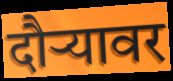
दौऱ्यावर